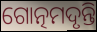
ଗୋତ୍ନମଦୃନ୍ତି